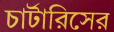
চার্টারিসের